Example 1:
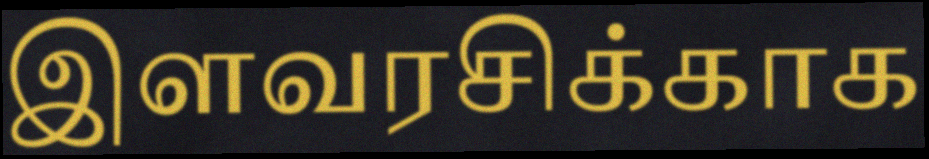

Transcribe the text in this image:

இளவரசிக்காக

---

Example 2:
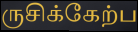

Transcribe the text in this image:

ருசிக்கேற்ப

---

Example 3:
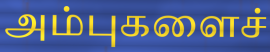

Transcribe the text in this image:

அம்புகளைச்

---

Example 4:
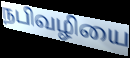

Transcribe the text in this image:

நபிவழியை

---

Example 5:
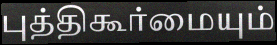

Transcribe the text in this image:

புத்திகூர்மையும்